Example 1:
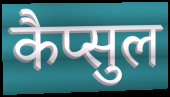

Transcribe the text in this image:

कैप्सुल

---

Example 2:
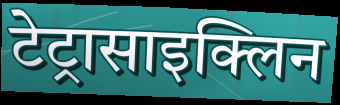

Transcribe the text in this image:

टेट्रासाइक्लिन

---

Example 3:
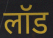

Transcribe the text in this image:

लॉड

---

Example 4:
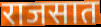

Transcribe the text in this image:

राजसात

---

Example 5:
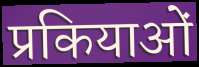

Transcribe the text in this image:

प्रकियाओं